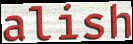
alish